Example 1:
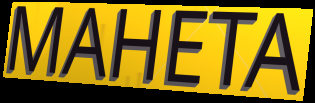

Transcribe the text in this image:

MAHETA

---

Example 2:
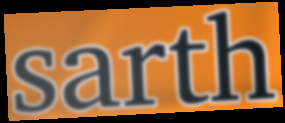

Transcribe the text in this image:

sarth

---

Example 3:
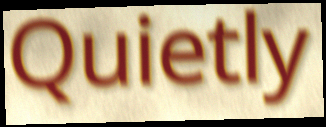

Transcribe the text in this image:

Quietly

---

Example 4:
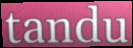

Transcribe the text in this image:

tandu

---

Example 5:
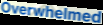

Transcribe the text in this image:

Overwhelmed